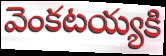
వెంకటయ్యకి